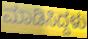
ಮಾಡಿಸಿದ್ದಳು